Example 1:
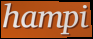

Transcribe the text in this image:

hampi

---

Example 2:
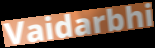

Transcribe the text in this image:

Vaidarbhi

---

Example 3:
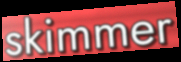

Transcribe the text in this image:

skimmer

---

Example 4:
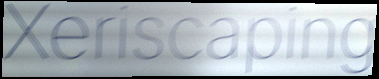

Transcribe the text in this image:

Xeriscaping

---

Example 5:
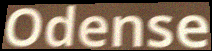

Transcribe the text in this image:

Odense